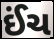
ઈંચ